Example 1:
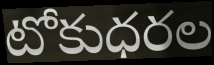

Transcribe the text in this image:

టోకుధరల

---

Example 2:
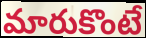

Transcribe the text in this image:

మారుకొంటే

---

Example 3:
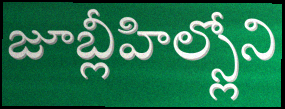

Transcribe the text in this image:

జూబ్లీహిల్స్లోని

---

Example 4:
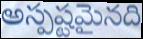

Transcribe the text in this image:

అస్పష్టమైనది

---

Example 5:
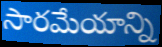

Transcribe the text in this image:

సారమేయాన్ని